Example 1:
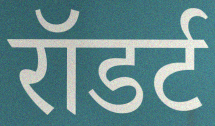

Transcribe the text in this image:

रॉडर्ट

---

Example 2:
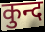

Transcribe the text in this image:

कुन्द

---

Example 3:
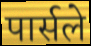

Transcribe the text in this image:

पार्सले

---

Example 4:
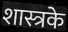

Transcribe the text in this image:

शास्त्रके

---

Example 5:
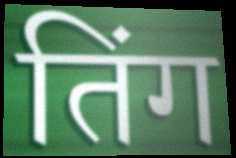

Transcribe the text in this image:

तिंग